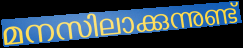
മനസിലാക്കുന്നുണ്ട്